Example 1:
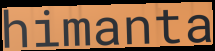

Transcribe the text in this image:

himanta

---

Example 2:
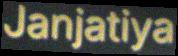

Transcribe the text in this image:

Janjatiya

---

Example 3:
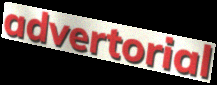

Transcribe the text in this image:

advertorial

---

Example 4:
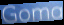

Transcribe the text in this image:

Goma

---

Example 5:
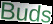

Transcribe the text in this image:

Buds